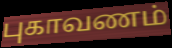
புகாவணம்